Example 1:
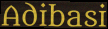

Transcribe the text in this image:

Adibasi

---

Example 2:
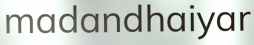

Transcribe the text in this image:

madandhaiyar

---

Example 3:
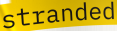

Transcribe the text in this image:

stranded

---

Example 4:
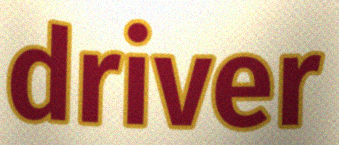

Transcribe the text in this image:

driver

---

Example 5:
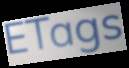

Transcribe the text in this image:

ETags